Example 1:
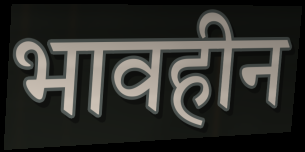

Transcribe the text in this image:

भावहीन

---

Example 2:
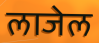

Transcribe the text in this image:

लाजेल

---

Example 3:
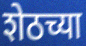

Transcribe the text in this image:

शेठच्या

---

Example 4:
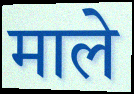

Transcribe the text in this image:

माले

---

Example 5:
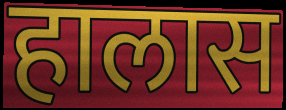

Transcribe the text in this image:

हालास